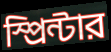
স্প্রিন্টার